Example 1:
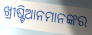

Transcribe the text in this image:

ଖ୍ରୀଷ୍ଟିଆନମାନଙ୍କର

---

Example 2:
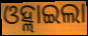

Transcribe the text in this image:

ଓହ୍ଲାଇଲା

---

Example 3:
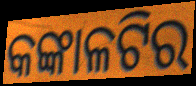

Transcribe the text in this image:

କଙ୍କାଳଟିର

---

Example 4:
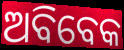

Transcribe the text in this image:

ଅବିବେକ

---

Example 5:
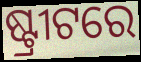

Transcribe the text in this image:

ଷ୍ଟ୍ରୀଟରେ